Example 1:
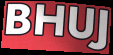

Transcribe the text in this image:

BHUJ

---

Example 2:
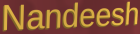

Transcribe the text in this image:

Nandeesh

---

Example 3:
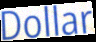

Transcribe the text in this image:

Dollar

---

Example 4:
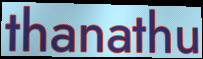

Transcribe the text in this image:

thanathu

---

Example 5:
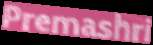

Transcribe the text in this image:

Premashri